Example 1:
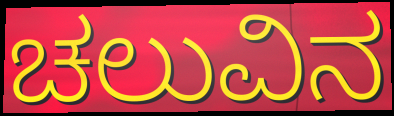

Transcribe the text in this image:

ಚಲುವಿನ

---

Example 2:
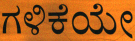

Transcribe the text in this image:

ಗಳಿಕೆಯೇ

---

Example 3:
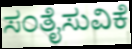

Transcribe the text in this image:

ಸಂತೈಸುವಿಕೆ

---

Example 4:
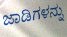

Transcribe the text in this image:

ಜಾಡಿಗಳನ್ನು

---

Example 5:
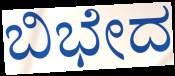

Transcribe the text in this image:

ಬಿಭೇದ